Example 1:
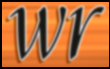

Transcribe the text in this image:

wr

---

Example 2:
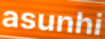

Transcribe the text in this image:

asunhi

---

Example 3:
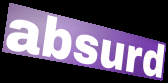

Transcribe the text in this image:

absurd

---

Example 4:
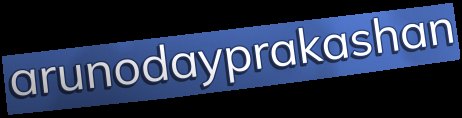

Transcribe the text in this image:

arunodayprakashan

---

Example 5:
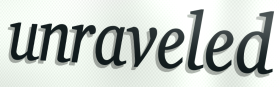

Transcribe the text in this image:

unraveled